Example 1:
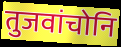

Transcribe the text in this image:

तुजवांचोनि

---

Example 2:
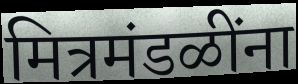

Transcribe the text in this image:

मित्रमंडळींना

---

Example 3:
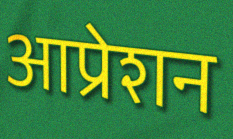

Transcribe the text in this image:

आप्रेशन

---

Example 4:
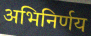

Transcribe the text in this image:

अभिनिर्णय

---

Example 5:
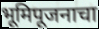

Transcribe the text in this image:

भूमिपूजनाचा